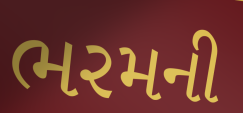
ભરમની